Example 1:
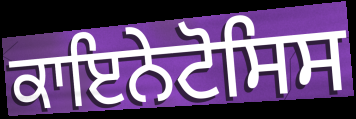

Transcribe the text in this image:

ਕਾਇਨੇਟੋਸਿਸ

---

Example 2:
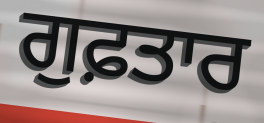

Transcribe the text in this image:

ਗੁਫ਼ਤਾਰ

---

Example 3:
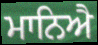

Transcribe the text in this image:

ਮਾਨਿਐ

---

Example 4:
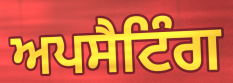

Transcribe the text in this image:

ਅਪਸੈਟਿੰਗ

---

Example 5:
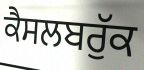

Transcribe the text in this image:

ਕੈਸਲਬਰੁੱਕ